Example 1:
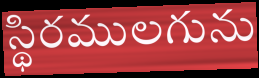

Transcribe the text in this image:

స్థిరములగును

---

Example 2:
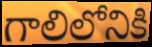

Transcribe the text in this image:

గాలిలోనికి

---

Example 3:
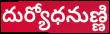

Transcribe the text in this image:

దుర్యోధనుణ్ణి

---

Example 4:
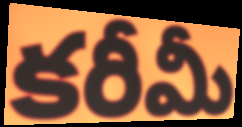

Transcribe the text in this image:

కరీమీ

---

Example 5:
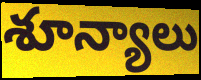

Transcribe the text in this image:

శూన్యాలు